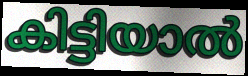
കിട്ടിയാൽ